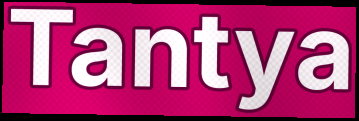
Tantya